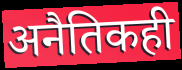
अनैतिकही